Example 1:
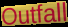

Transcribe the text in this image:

Outfall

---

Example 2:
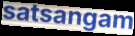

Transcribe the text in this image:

satsangam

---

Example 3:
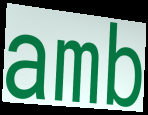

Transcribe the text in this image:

amb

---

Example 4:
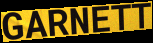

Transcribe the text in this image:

GARNETT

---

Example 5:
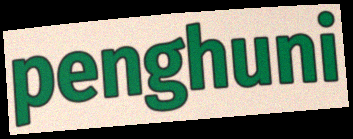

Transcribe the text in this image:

penghuni